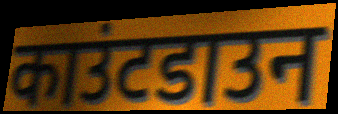
काउंटडाउन